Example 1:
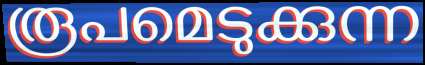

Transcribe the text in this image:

രൂപമെടുക്കുന്ന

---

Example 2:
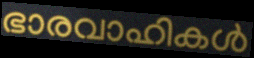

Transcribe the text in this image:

ഭാരവാഹികൾ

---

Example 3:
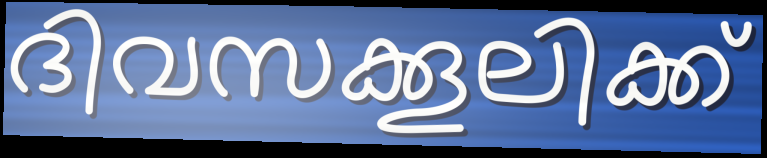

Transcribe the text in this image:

ദിവസക്കൂലിക്ക്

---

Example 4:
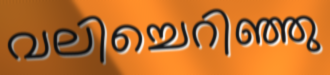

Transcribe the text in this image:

വലിച്ചെറിഞ്ഞു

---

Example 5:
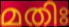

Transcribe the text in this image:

മതിഃ